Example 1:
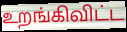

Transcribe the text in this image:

உறங்கிவிட்ட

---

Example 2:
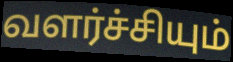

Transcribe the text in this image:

வளர்ச்சியும்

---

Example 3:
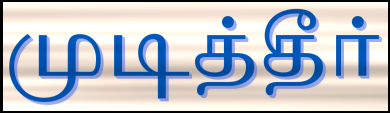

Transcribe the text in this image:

முடித்தீர்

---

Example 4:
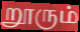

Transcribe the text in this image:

றூரும்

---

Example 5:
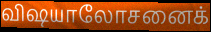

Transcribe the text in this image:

விஷயாலோசனைக்